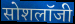
सोशलॉजी